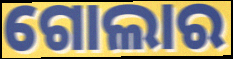
ଗୋଲାର